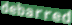
debarred